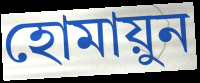
হোমায়ুন